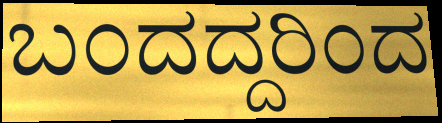
ಬಂದದ್ದರಿಂದ